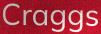
Craggs